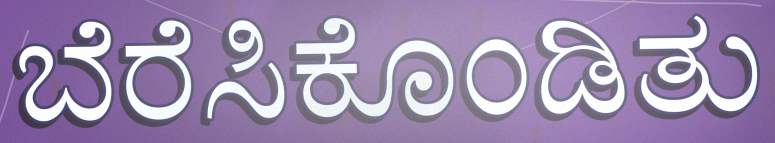
ಬೆರೆಸಿಕೊಂಡಿತು